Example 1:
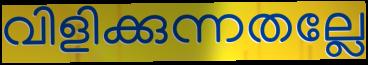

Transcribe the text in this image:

വിളിക്കുന്നതല്ലേ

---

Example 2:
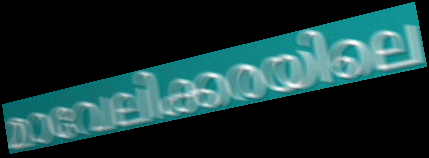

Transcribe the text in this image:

മാവേലിക്കരയിലെ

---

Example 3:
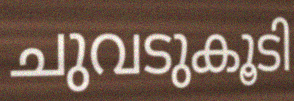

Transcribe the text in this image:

ചുവടുകൂടി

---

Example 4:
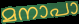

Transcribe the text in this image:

മനാപാ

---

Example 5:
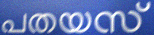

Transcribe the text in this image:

പതയസ്